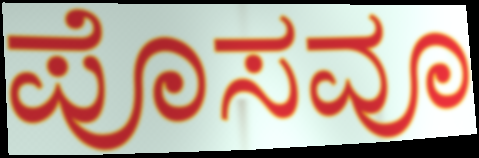
ಪೊಸವೂ